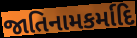
જાતિનામકર્માદિ